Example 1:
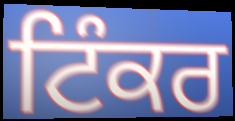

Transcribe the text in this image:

ਟਿੰਕਰ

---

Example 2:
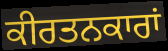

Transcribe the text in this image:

ਕੀਰਤਨਕਾਰਾਂ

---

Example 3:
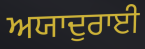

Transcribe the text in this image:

ਅਯਾਦੁਰਾਈ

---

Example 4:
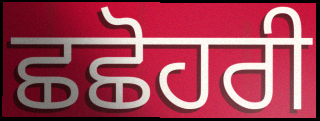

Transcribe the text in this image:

ਛਛੋਹਰੀ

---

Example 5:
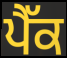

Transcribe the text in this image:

ਪੈੱਕ